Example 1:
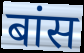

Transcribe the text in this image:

बांस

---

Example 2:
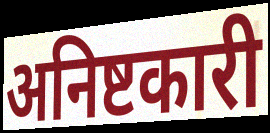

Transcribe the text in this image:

अनिष्टकारी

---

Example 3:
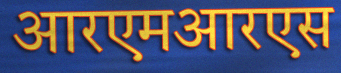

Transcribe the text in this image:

आरएमआरएस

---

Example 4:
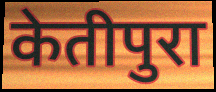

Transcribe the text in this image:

केतीपुरा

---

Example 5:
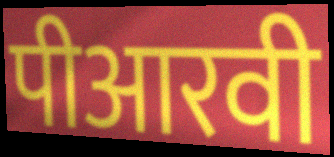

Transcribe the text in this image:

पीआरवी